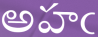
అహఁ